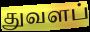
துவளப்